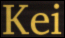
Kei